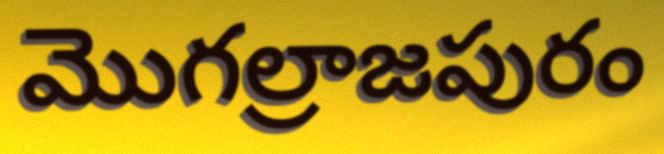
మొగల్రాజపురం